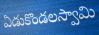
ఏడుకొండలస్వామి